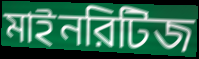
মাইনরিটিজ